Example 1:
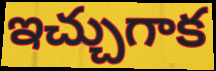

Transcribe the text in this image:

ఇచ్చుగాక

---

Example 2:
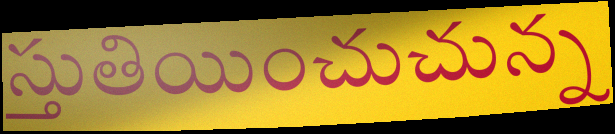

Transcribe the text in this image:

స్తుతియించుచున్న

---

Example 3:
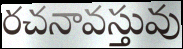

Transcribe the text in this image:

రచనావస్తువు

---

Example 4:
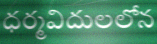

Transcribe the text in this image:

ధర్మవిదులలోన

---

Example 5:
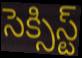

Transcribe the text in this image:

సెక్సిస్ట్